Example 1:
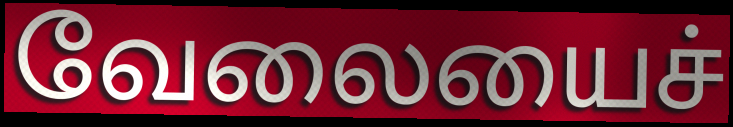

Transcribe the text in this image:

வேலையைச்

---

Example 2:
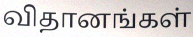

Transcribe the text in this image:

விதானங்கள்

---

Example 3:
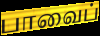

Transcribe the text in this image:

பாவைப்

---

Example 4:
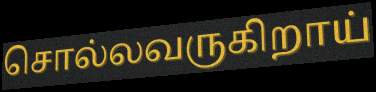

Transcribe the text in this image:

சொல்லவருகிறாய்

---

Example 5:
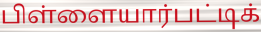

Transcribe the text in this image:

பிள்ளையார்பட்டிக்